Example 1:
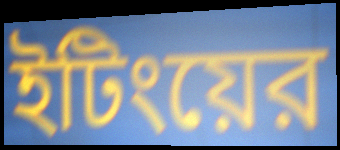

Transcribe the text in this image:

ইটিংয়ের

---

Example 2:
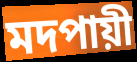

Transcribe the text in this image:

মদপায়ী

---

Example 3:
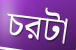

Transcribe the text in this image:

চরটা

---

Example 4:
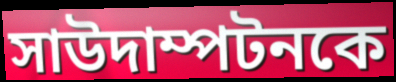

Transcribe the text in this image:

সাউদাম্পটনকে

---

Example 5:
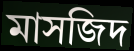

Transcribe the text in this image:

মাসজিদ